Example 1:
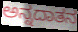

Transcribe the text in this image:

ಅನ್ನದಾತನ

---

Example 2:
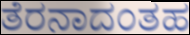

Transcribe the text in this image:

ತೆರನಾದಂತಹ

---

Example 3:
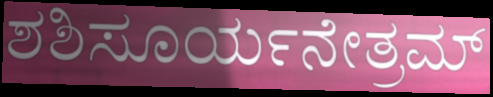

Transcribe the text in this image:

ಶಶಿಸೂರ್ಯನೇತ್ರಮ್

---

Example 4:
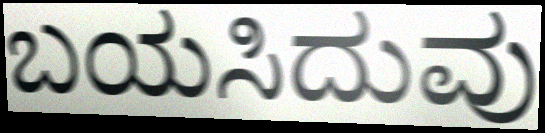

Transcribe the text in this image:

ಬಯಸಿದುವು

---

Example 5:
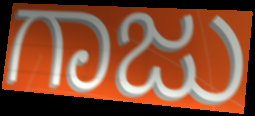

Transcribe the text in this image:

ಗಾಜು